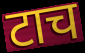
टाच